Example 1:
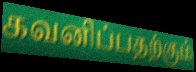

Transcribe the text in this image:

கவனிப்பதற்கும்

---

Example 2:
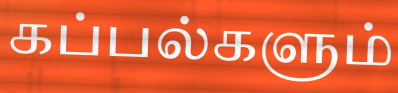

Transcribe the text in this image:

கப்பல்களும்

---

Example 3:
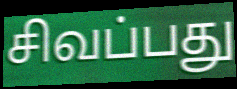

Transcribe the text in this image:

சிவப்பது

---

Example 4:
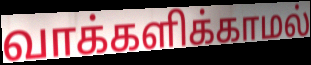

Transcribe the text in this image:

வாக்களிக்காமல்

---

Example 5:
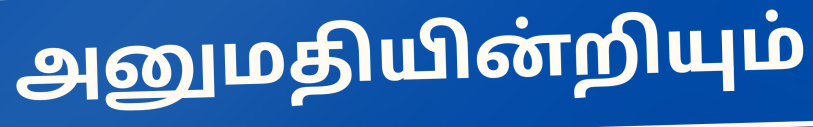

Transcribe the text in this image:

அனுமதியின்றியும்